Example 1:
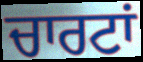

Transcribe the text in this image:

ਚਾਰਟਾਂ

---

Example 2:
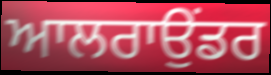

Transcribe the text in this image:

ਆਲਰਾਉਂਡਰ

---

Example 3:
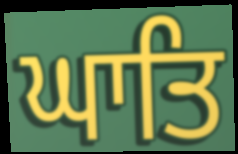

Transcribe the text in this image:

ਘਾਤਿ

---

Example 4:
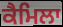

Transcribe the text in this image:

ਕੈਮਿਲਾ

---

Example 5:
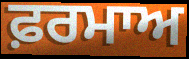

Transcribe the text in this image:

ਫ਼ਰਮਾਅ